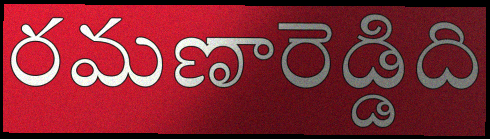
రమణారెడ్డిది